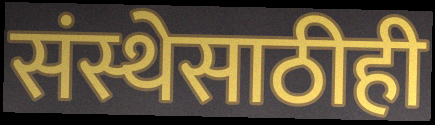
संस्थेसाठीही